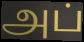
அப்